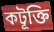
কটূক্তি